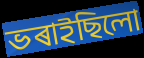
ভৰাইছিলো